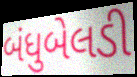
બંધુબેલડી